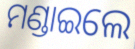
ମଣ୍ଡାଇଲେ